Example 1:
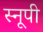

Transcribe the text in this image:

स्नूपी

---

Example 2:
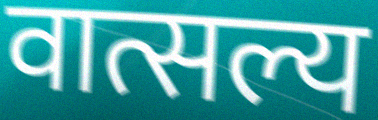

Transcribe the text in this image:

वात्सल्य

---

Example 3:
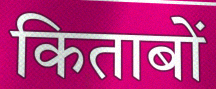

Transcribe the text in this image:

किताबों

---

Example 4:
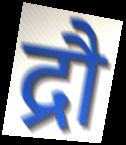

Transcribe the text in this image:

द्रौ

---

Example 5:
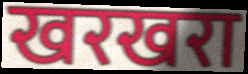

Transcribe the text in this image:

खरखरा